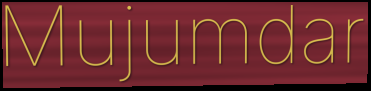
Mujumdar